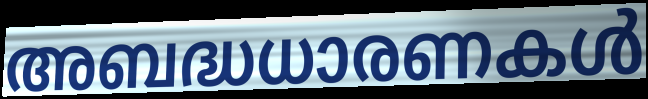
അബദ്ധധാരണകൾ